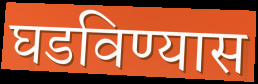
घडविण्यास